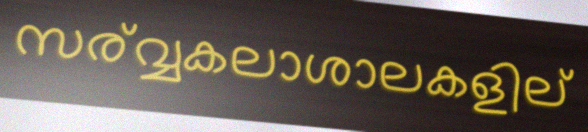
സര്വ്വകലാശാലകളില്